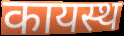
कायस्थ